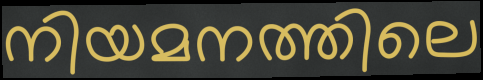
നിയമനത്തിലെ